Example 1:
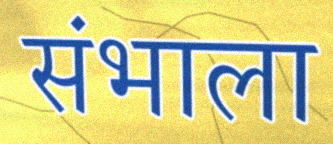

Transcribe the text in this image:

संभाला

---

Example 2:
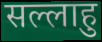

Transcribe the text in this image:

सल्लाहु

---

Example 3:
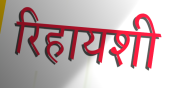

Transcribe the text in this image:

रिहायशी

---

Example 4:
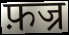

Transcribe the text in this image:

फ़ज्र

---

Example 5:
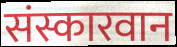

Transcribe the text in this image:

संस्कारवान